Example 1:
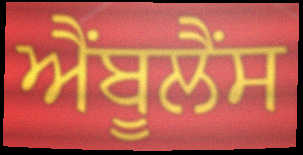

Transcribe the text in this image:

ਐੰਬੂਲੈੰਸ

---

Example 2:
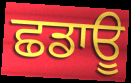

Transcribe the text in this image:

ਛਡਾਊ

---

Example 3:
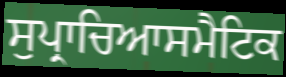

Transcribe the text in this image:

ਸੁਪ੍ਰਾਚਿਆਸਮੈਟਿਕ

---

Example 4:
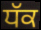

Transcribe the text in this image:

ਧੱਕ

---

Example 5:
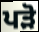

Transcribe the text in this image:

ਪੜੋ